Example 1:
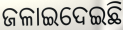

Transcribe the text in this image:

ଜଳାଇଦେଇଛି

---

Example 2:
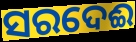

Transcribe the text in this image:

ସରଦେଈ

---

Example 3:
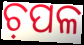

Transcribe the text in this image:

ଚ଼ପଳ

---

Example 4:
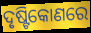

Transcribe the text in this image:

ଦୃଷ୍ଟିକୋଣରେ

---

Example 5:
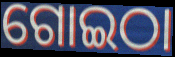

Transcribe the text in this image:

ଗୋଇଠା